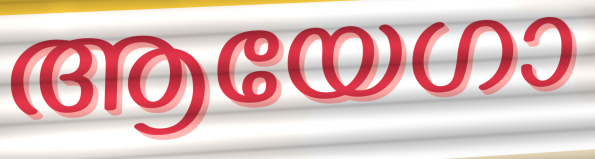
ആയേഗാ